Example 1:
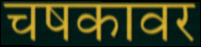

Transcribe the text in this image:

चषकावर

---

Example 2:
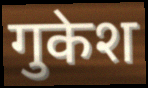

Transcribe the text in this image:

गुकेश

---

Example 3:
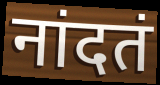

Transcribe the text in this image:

नांदतं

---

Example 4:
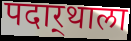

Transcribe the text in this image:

पदार्थाला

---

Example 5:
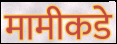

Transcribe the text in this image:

मामीकडे